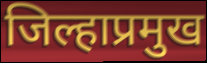
जिल्हाप्रमुख